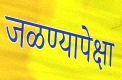
जळण्यापेक्षा